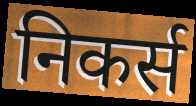
निकर्स